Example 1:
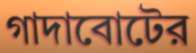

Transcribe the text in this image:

গাদাবোটের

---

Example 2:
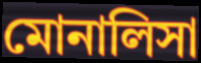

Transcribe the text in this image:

মোনালিসা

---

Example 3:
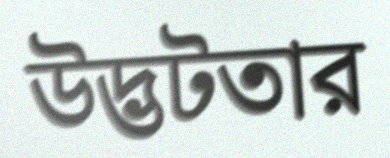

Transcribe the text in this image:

উদ্ভটতার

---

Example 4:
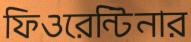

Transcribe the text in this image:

ফিওরেন্টিনার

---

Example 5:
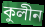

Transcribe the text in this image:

কুলীন